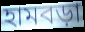
হামবড়া